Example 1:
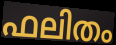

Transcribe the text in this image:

ഫലിതം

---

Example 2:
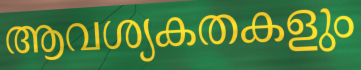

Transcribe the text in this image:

ആവശ്യകതകളും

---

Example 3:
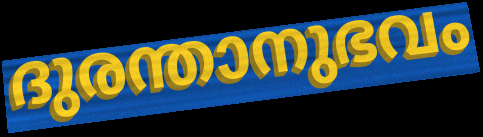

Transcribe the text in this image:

ദുരന്താനുഭവം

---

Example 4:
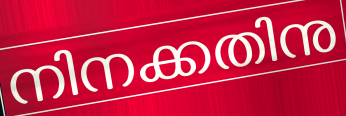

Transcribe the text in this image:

നിനക്കതിനു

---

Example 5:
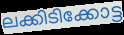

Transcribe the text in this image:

ലക്കിടിക്കോട്ട